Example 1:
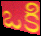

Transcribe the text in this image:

ఒకి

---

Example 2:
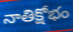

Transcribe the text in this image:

నాతిక్షోభం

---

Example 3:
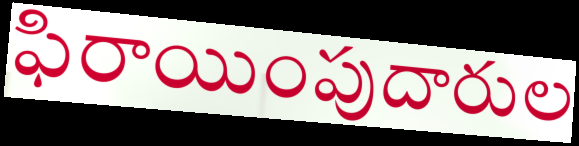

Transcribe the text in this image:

ఫిరాయింపుదారుల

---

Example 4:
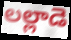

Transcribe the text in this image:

లల్లాడె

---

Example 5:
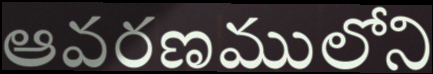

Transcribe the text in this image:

ఆవరణములోని